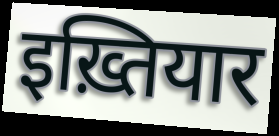
इख़्तियार